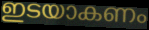
ഇടയാകണം